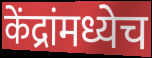
केंद्रांमध्येच